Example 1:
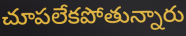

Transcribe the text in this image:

చూపలేకపోతున్నారు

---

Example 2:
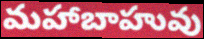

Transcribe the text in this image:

మహాబాహువు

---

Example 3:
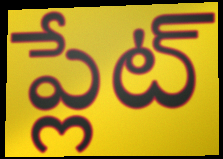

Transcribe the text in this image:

ప్లేట్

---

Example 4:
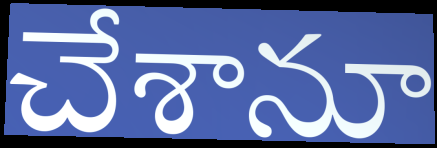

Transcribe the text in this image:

చేశానూ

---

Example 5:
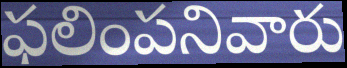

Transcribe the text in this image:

ఫలింపనివారు